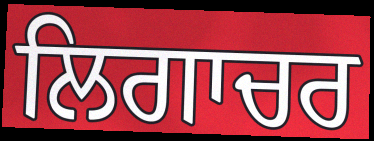
ਲਿਗਾਚਰ